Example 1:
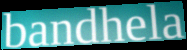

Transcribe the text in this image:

bandhela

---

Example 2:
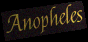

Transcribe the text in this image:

Anopheles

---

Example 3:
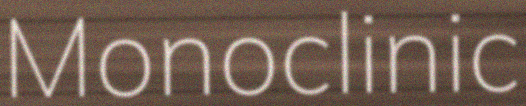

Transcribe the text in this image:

Monoclinic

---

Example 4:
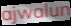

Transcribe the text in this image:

ajwalun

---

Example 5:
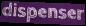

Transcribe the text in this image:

dispenser